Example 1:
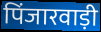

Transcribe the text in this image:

पिंजारवाड़ी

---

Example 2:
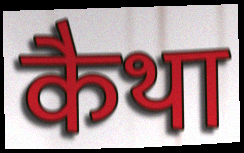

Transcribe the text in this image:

कैथा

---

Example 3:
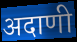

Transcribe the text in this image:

अदाणी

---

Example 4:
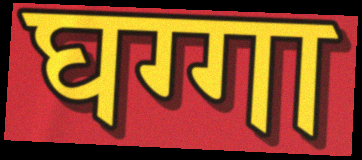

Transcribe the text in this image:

घग्गा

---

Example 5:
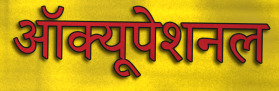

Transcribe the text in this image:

ऑक्यूपेशनल